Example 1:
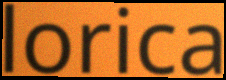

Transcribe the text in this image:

lorica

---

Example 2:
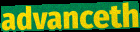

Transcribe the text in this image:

advanceth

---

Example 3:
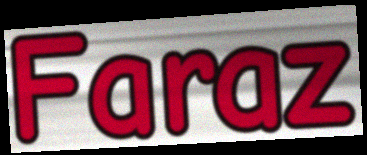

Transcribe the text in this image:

Faraz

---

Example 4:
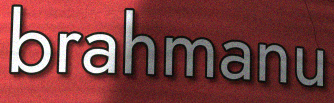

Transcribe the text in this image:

brahmanu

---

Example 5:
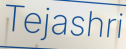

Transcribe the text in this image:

Tejashri